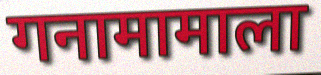
गनामामाला